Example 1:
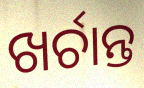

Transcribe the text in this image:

ଖର୍ଚାନ୍ତ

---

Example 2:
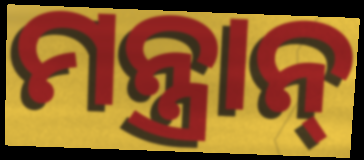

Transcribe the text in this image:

ମନ୍ତ୍ରାନ୍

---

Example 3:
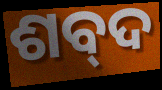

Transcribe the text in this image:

ଶବ୍‍ଦ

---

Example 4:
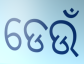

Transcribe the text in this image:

ଡେଉଁ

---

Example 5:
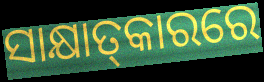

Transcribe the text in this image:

ସାକ୍ଷାତ୍‌କାରରେ